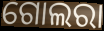
ଗୋଲରା